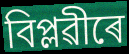
বিপ্লৱীৰে